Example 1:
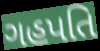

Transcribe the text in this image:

ગહપતિ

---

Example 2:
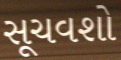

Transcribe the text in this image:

સૂચવશો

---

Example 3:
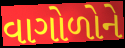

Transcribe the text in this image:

વાગોળોને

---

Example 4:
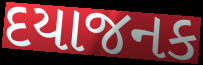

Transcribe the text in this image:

દયાજનક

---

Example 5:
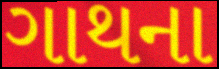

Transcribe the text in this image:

ગાથના